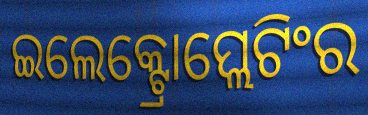
ଇଲେକ୍ଟ୍ରୋପ୍ଲେଟିଂର